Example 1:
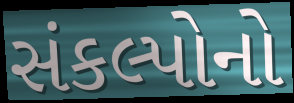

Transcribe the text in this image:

સંકલ્પોનો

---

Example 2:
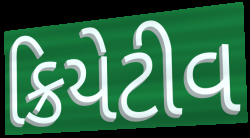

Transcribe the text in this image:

ક્રિયેટીવ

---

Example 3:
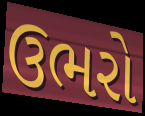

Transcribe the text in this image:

ઉભરો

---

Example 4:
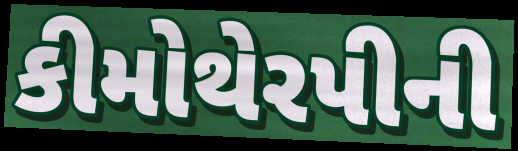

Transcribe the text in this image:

કીમોથેરપીની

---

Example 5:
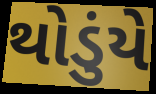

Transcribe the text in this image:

થોડુંયે